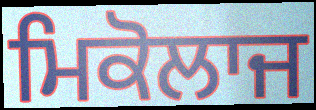
ਮਿਕੋਲਾਜ